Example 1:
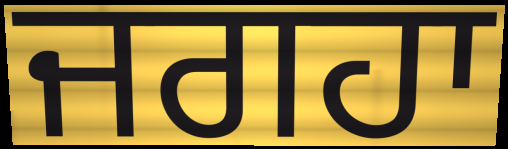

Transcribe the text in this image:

ਜਗਹਾ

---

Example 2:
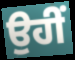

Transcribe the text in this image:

ਉਹੀਂ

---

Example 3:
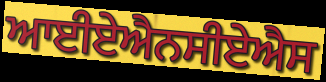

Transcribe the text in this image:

ਆਈਏਐਨਸੀਏਐਸ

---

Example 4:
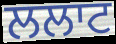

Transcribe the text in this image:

ਲਲਾਟ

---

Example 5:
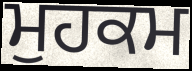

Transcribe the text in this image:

ਮੁਹਕਮ